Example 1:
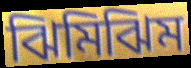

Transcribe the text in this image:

ঝিমিঝিম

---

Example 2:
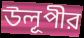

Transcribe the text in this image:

উলূপীর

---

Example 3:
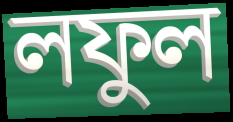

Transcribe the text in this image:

লফুল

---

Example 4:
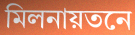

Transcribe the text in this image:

মিলনায়তনে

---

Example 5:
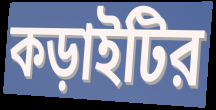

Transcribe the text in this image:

কড়াইটির